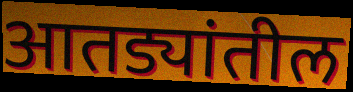
आतड्यांतील